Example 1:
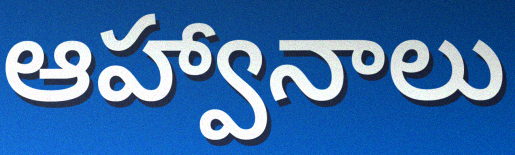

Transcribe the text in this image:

ఆహ్వానాలు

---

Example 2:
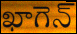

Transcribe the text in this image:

ఖాగెన్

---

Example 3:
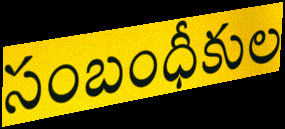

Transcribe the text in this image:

సంబంధీకుల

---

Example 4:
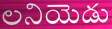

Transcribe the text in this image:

లనియెడు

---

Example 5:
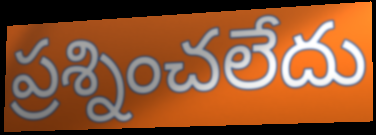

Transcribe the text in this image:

ప్రశ్నించలేదు